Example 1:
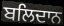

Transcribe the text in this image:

ਬਲਿਦਾਨ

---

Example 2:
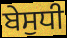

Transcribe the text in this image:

ਬੇਸੁਧੀ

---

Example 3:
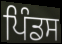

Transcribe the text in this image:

ਪਿੰਡਸ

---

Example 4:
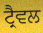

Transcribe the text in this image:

ਟ੍ਰੈਵਲ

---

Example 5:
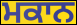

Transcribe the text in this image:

ਮਕਾਨ